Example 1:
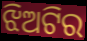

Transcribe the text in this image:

ଝିଅଟିର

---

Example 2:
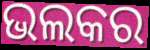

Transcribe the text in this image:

ଭଲକର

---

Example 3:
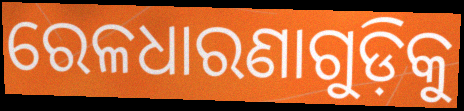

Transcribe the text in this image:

ରେଳଧାରଣାଗୁଡ଼ିକୁ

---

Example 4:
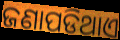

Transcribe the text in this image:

ଜଣାପଡିଥାଏ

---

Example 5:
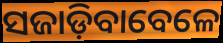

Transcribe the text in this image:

ସଜାଡ଼ିବାବେଳେ